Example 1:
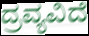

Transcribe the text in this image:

ದ್ರವ್ಯವಿದೆ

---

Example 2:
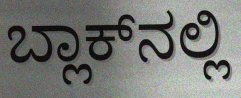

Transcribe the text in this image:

ಬ್ಲಾಕ್‌ನಲ್ಲಿ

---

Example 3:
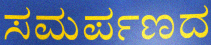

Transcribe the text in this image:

ಸಮರ್ಪಣದ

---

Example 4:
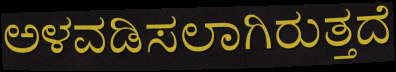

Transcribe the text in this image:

ಅಳವಡಿಸಲಾಗಿರುತ್ತದೆ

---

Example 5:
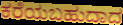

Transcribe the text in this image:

ಕರೆಯಬಹುದಾದ